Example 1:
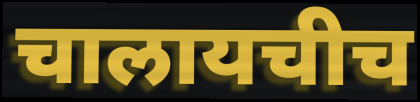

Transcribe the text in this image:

चालायचीच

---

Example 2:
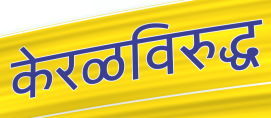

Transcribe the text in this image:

केरळविरुद्ध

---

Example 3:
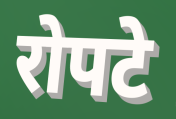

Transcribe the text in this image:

रोपटे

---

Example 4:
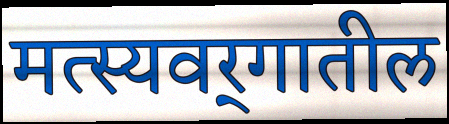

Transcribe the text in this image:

मत्स्यवर्गातील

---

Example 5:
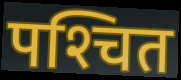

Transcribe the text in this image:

पश्चित